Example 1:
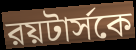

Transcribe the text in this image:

রয়টার্সকে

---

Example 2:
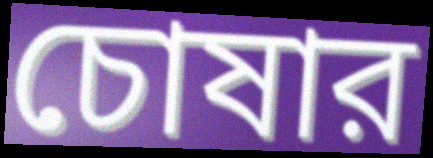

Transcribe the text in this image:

চোষার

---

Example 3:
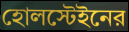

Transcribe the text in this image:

হোলস্টেইনের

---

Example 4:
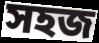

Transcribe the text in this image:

সহজ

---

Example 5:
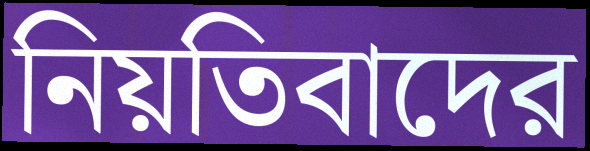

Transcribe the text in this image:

নিয়তিবাদের